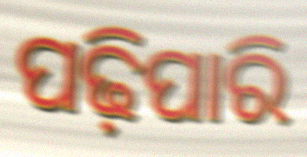
ପଢ଼ିପାରି